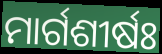
ମାର୍ଗଶୀର୍ଷଃ